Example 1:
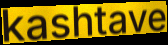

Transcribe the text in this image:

kashtave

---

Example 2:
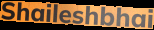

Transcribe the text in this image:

Shaileshbhai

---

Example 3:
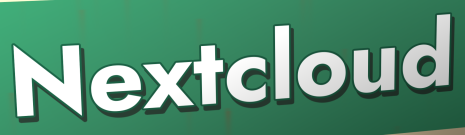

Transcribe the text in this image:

Nextcloud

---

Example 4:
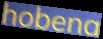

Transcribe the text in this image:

hobena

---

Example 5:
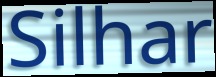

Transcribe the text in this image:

Silhar